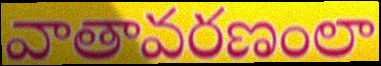
వాతావరణంలా